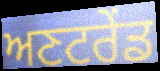
ਅਣਟਰੇਂਡ